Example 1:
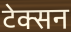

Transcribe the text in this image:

टेक्सन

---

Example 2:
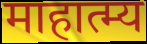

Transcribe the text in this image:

माहात्म्य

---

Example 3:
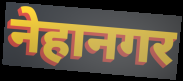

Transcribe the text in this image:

नेहानगर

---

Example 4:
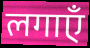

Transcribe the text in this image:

लगाएँ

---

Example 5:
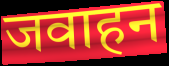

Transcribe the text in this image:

जवाहन